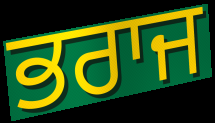
ਭਰਾਜ